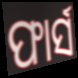
ଫାର୍ସ